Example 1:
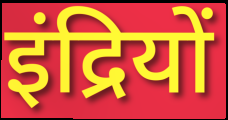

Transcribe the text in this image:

इंद्रियों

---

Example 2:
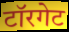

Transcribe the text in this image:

टॉरगेट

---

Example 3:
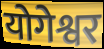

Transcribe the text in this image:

योगेश्वर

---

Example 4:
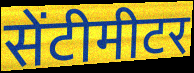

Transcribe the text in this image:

सेंटीमीटर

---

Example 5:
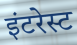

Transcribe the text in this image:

इंटरेस्ट